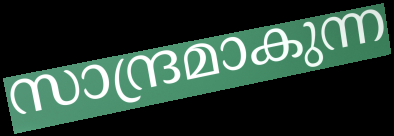
സാന്ദ്രമാകുന്ന